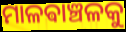
ମାଳଵାଞ୍ଚଳକୁ